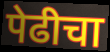
पेढीचा